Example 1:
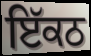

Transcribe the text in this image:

ਇੱਕਠ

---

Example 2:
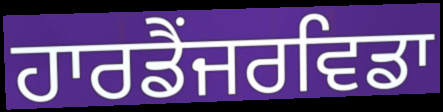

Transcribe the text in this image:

ਹਾਰਡੈਂਜਰਵਿਡਾ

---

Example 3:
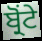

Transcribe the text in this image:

ਬ੍ਰੋਂਟੇ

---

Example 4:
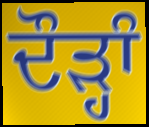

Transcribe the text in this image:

ਦੌੜ੍ਹਾੰ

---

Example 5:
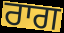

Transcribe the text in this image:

ਰਾਗ